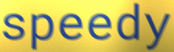
speedy